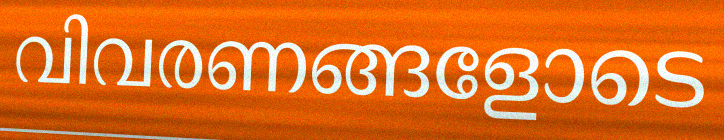
വിവരണങ്ങളോടെ